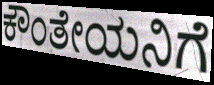
ಕೌಂತೇಯನಿಗೆ